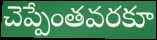
చెప్పేంతవరకూ